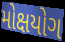
મોક્ષયોગ